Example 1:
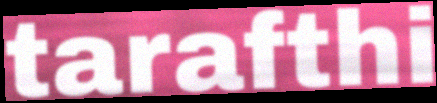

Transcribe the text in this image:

tarafthi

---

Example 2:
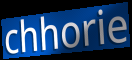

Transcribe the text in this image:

chhorie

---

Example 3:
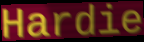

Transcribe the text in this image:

Hardie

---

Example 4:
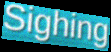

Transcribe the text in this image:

Sighing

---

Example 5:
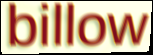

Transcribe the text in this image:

billow